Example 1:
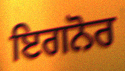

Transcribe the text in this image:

ਇਗਨੋਰ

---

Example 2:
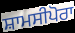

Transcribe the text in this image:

ਸ਼ਾਮਸੀਪੋਰਾ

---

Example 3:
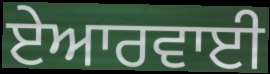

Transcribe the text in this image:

ਏਆਰਵਾਈ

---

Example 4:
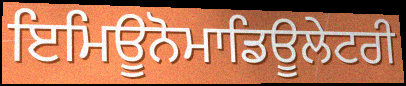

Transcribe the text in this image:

ਇਮਿਊਨੋਮਾਡਿਊਲੇਟਰੀ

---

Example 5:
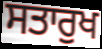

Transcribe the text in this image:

ਸਤਾਰੁਖ